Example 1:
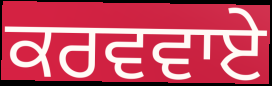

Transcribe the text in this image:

ਕਰਵਵਾਏ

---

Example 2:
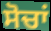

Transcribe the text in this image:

ਸੋਚਾਂ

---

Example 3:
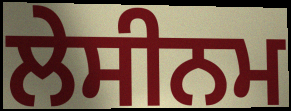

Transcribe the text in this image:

ਲੇਸੀਨਮ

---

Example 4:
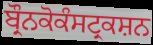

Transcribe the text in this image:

ਬ੍ਰੌਨਕੋਕੰਸਟ੍ਰਕਸ਼ਨ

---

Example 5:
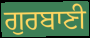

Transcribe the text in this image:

ਗੁਰਬਾਣੀ